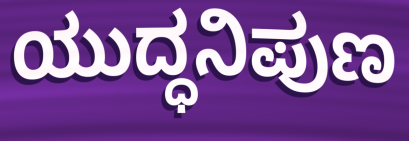
ಯುದ್ಧನಿಪುಣ